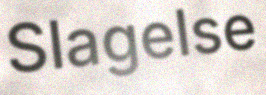
Slagelse